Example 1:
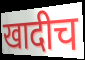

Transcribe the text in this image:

खादीच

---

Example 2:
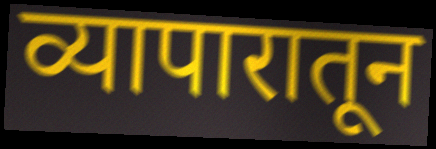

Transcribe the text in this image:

व्यापारातून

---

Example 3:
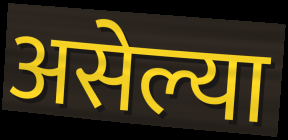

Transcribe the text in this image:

असेल्या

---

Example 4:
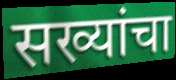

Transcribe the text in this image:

सख्यांचा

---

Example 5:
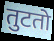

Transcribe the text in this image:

तुटतो